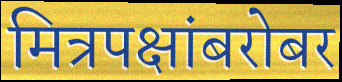
मित्रपक्षांबरोबर